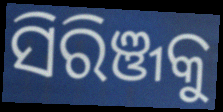
ସିରିଞ୍ଜକୁ